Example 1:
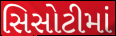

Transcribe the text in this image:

સિસોટીમાં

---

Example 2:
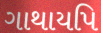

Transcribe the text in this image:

ગાથાયપિ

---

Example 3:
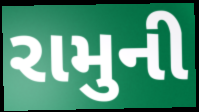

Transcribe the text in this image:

રામુની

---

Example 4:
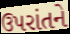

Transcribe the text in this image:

ઉપરાંતને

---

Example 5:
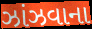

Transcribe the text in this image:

ઝાંઝવાના